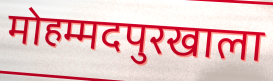
मोहम्मदपुरखाला